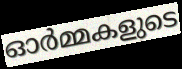
ഓർമ്മകളുടെ